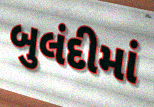
બુલંદીમાં